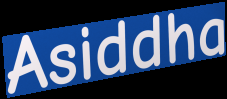
Asiddha